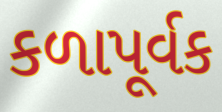
કળાપૂર્વક